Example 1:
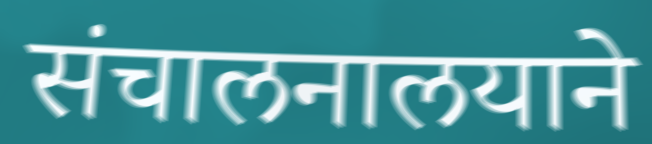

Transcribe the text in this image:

संचालनालयाने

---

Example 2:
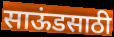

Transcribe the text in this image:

साऊंडसाठी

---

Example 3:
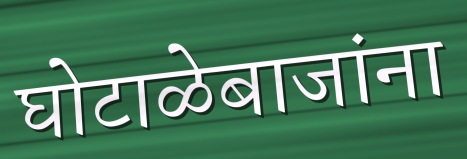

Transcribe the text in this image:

घोटाळेबाजांना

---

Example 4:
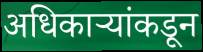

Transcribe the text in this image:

अधिकाऱ्यांकडून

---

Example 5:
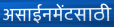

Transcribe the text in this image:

असाईनमेंटसाठी